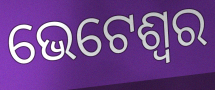
ଭେଟେଶ୍ୱର